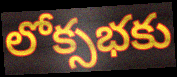
లోక్సభకు